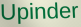
Upinder